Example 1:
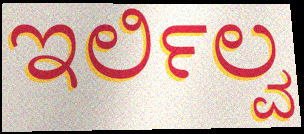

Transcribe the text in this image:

ಇರ್ಲಿಲ್ವ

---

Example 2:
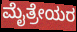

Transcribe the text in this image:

ಮೈತ್ರೇಯರ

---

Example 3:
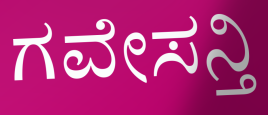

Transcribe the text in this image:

ಗವೇಸನ್ತಿ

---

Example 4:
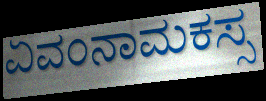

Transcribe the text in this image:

ಏವಂನಾಮಕಸ್ಸ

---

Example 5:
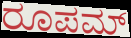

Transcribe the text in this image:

ರೂಪಮ್